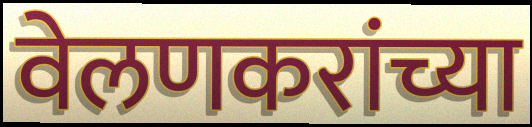
वेलणकरांच्या